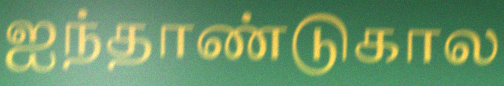
ஐந்தாண்டுகால